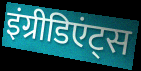
इंग्रीडिएंट्स